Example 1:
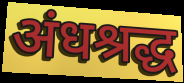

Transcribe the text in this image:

अंधश्रद्ध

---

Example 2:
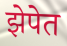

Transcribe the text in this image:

झेपेत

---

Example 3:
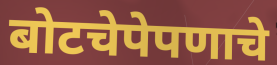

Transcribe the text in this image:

बोटचेपेपणाचे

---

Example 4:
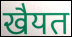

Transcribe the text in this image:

खैयत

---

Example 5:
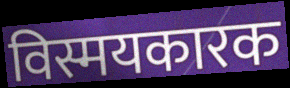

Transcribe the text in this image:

विस्मयकारक